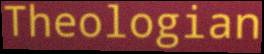
Theologian